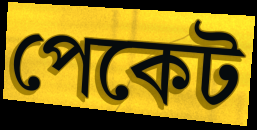
পেকেট